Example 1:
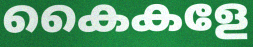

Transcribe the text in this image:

കൈകളേ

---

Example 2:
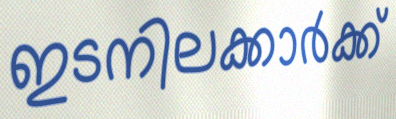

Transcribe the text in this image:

ഇടനിലക്കാർക്ക്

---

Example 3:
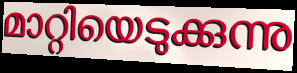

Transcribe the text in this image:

മാറ്റിയെടുക്കുന്നു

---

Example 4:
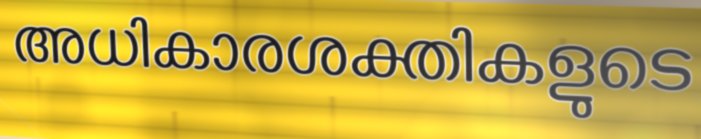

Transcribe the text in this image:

അധികാരശക്തികളുടെ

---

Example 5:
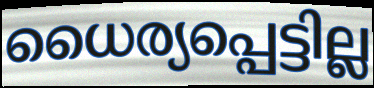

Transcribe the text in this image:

ധൈര്യപ്പെട്ടില്ല